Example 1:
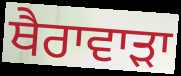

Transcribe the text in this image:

ਥੈਰਾਵਾੜਾ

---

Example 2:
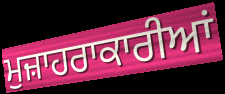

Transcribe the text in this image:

ਮੁਜ਼ਾਹਰਾਕਾਰੀਆਂ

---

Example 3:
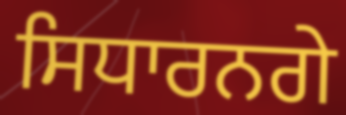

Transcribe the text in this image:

ਸਿਧਾਰਨਗੇ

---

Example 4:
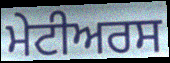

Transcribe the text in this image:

ਮੇਟੀਅਰਸ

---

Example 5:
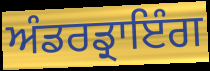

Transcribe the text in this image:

ਅੰਡਰਡ੍ਰਾਇੰਗ